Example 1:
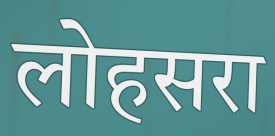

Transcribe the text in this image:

लोहसरा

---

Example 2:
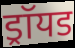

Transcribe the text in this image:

ड्रॉयड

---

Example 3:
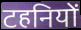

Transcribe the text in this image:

टहनियों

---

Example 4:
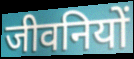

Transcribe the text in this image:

जीवनियों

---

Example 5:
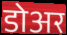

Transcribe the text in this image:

डोअर